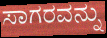
ಸಾಗರವನ್ನು